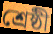
শ্রেষ্ঠী